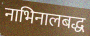
नाभिनालबद्ध